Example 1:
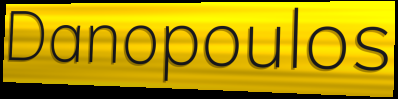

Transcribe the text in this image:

Danopoulos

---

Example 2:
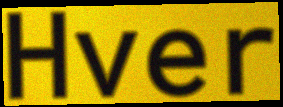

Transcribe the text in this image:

Hver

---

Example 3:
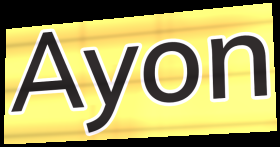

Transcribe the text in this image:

Ayon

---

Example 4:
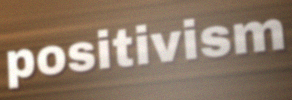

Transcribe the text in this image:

positivism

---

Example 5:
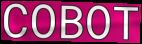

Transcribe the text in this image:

COBOT